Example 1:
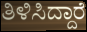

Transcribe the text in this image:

ತಿಳಿಸಿದ್ದಾರೆ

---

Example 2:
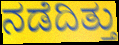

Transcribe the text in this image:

ನಡೆದಿತ್ತು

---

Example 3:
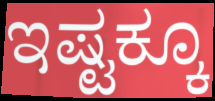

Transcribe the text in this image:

ಇಷ್ಟಕ್ಕೂ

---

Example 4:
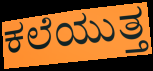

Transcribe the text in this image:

ಕಲೆಯುತ್ತ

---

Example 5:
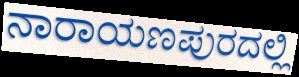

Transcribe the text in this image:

ನಾರಾಯಣಪುರದಲ್ಲಿ